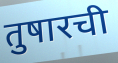
तुषारची